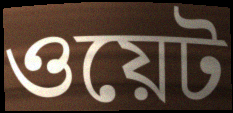
ওয়েট